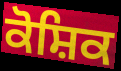
ਕੋਸ਼ਿਕ